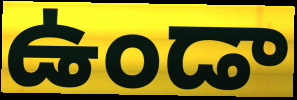
ఉండా